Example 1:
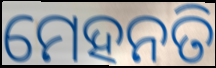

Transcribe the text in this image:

ମେହନତି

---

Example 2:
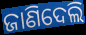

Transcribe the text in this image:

ଜାଣିଦେଲି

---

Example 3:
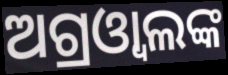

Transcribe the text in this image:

ଅଗ୍ରଓ୍ବାଲଙ୍କ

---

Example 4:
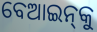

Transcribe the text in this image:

ବେଆଇନ୍‌କୁ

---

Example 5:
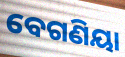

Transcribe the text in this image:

ବେଗଣିୟା